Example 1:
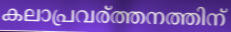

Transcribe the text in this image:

കലാപ്രവര്ത്തനത്തിന്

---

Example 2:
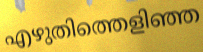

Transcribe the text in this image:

എഴുതിത്തെളിഞ്ഞ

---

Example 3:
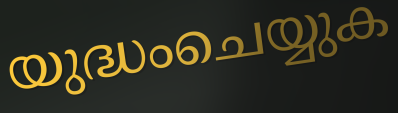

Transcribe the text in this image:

യുദ്ധംചെയ്യുക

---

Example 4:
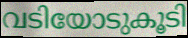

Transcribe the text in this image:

വടിയോടുകൂടി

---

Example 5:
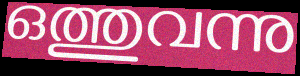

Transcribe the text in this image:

ഒത്തുവന്നു